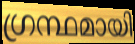
ഗ്രന്ഥമായി